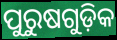
ପୁରୁଷଗୁଡ଼ିକ